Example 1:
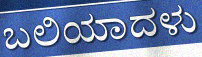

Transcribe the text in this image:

ಬಲಿಯಾದಳು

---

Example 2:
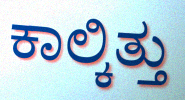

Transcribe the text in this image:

ಕಾಲ್ಕಿತ್ತು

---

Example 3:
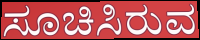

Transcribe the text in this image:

ಸೂಚಿಸಿರುವ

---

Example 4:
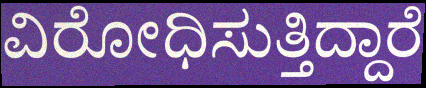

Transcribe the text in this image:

ವಿರೋಧಿಸುತ್ತಿದ್ದಾರೆ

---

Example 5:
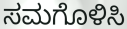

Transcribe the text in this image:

ಸಮಗೊಳಿಸಿ